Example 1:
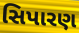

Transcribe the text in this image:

સિપારણ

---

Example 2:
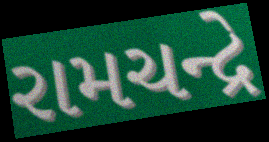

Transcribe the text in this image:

રામચન્દ્રે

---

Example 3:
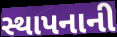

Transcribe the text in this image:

સ્થાપનાની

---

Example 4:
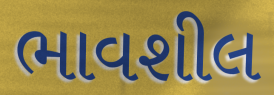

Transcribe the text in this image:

ભાવશીલ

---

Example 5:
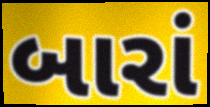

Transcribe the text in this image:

બારાં